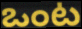
ఒంట